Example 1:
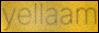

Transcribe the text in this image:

yellaam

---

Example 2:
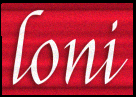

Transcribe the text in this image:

loni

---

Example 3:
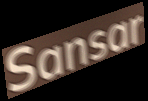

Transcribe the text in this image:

Sansar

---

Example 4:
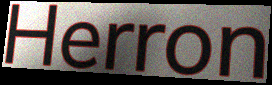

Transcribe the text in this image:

Herron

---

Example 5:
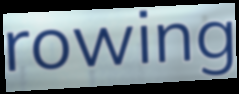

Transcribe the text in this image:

rowing